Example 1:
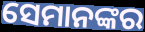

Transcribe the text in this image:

ସେମାନଙ୍କର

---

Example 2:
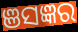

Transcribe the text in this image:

ଞସଜ୍ଞର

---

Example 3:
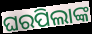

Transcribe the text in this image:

ଘରପିଲାଙ୍କ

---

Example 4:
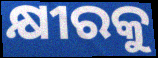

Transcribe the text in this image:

କ୍ଷୀରକୁ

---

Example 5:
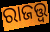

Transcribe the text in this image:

ରାଜତ୍ତ୍ୱ